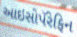
આઇસોપૅરેફિન